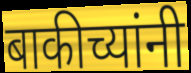
बाकीच्यांनी